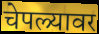
चेपल्यावर